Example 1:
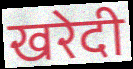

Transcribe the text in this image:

खरेदी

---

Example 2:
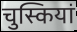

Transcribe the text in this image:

चुस्कियां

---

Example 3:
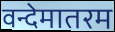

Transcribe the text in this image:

वन्देमातरम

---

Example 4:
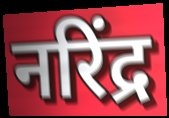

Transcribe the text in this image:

नरिंद्र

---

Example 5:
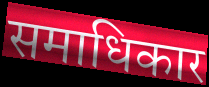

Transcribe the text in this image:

समाधिकार